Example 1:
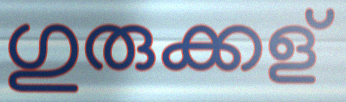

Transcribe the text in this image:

ഗുരുക്കള്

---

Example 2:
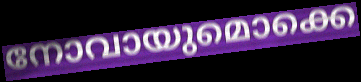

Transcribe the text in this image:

നോവായുമൊക്കെ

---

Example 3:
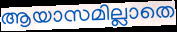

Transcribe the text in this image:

ആയാസമില്ലാതെ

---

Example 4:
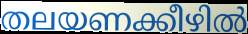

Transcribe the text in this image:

തലയണക്കീഴിൽ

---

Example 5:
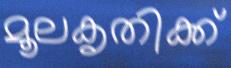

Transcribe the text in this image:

മൂലകൃതിക്ക്